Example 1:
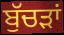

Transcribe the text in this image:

ਬੁੱਚੜਾਂ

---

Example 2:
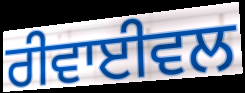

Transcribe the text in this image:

ਰੀਵਾਈਵਲ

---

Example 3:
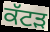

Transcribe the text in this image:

ਕੱਟੜ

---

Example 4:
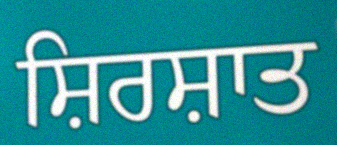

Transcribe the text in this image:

ਸ਼ਿਰਸ਼ਾਤ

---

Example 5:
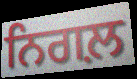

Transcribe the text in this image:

ਨਿਗਲ਼